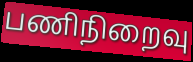
பணிநிறைவு